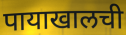
पायाखालची